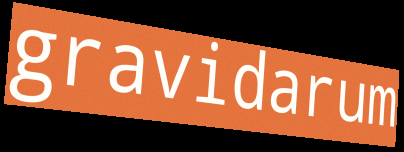
gravidarum